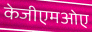
केजीएमओए